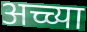
अच्च्या